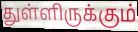
துள்ளிருக்கும்